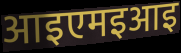
आइएमइआइ